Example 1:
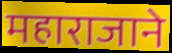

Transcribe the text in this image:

महाराजाने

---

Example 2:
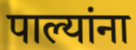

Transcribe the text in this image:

पाल्यांना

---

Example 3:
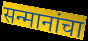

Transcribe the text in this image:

सन्मानांचा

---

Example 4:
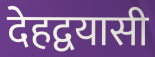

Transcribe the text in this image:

देहद्वयासी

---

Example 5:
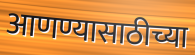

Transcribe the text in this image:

आणण्यासाठीच्या